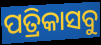
ପତ୍ରିକାସବୁ